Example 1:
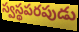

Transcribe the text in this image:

స్వస్థపరపుడు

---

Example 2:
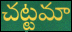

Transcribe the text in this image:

చట్టమా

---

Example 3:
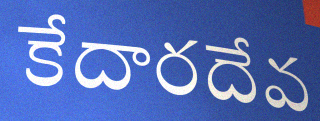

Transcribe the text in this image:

కేదారదేవ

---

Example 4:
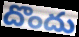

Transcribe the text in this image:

దొందు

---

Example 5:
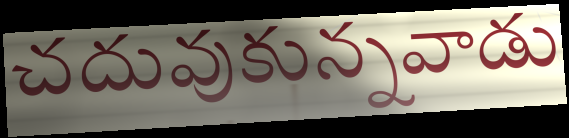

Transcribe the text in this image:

చదువుకున్నవాడు